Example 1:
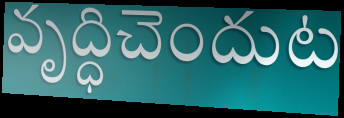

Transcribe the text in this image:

వృద్ధిచెందుట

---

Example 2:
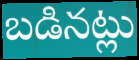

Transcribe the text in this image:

బడినట్లు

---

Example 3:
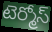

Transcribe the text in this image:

టెర్మోస్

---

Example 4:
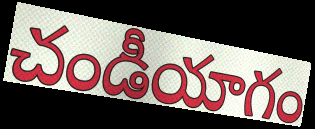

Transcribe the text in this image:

చండీయాగం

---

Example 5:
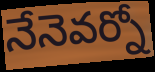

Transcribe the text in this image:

నేనెవర్నో